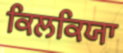
ਕਿਲਕਿਯਾ